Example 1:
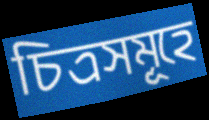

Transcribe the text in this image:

চিত্ৰসমূহে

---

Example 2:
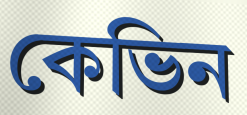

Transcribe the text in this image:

কেভিন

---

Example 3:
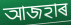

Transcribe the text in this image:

আজহাৰ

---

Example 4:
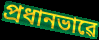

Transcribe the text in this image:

প্ৰধানভাৱে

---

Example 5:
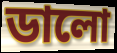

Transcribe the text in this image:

ডালো